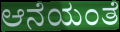
ಆನೆಯಂತೆ